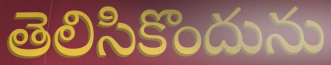
తెలిసికొందును